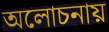
অলোচনায়